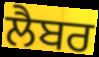
ਲੈਬਰ